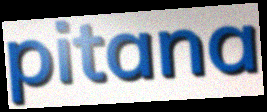
pitana